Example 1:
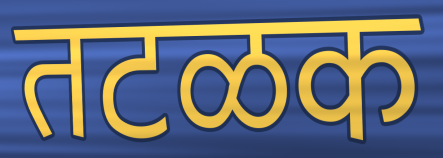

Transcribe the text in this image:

तटळक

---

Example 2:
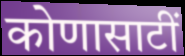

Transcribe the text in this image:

कोणासाटीं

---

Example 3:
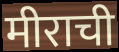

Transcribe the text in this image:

मीराची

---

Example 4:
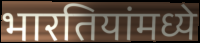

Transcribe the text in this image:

भारतियांमध्ये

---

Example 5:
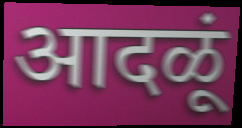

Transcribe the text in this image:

आदळूं